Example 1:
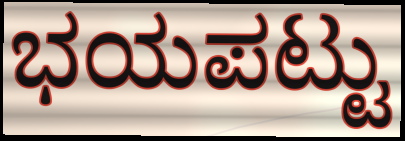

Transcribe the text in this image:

ಭಯಪಟ್ಟು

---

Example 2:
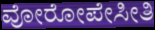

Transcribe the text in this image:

ವೋರೋಪೇಸೀತಿ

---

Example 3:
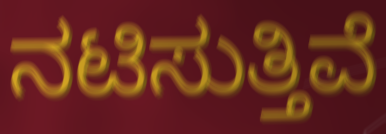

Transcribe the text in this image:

ನಟಿಸುತ್ತಿವೆ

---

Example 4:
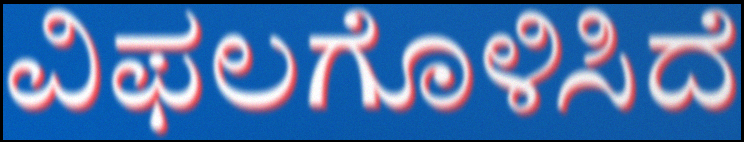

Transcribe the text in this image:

ವಿಫಲಗೊಳಿಸಿದೆ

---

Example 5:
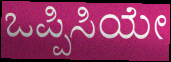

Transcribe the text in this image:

ಒಪ್ಪಿಸಿಯೇ